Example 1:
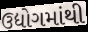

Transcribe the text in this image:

ઉદ્યોગમાંથી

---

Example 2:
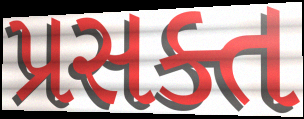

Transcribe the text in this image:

પ્રસક્ત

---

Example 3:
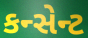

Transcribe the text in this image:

કન્સેન્ટ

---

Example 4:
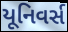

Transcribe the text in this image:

યૂનિવર્સ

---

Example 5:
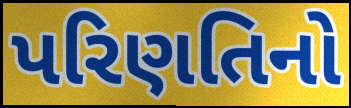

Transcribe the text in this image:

પરિણતિનો